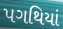
પગથિયાં